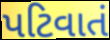
પટિવાતં